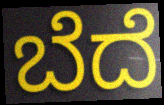
ಬೆದೆ